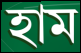
হাম